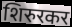
शिरुरकर